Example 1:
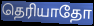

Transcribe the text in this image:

தெரியாதோ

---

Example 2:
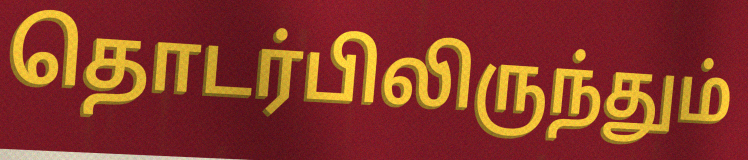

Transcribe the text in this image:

தொடர்பிலிருந்தும்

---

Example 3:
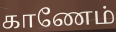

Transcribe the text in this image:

காணேம்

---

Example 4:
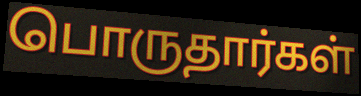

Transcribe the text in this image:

பொருதார்கள்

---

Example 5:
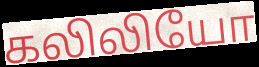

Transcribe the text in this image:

கலிலியோ